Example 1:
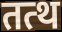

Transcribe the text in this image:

तत्थ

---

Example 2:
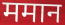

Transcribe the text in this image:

ममान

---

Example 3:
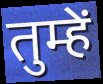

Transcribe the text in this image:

तुम्‍हें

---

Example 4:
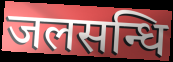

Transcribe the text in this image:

जलसन्धि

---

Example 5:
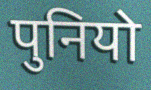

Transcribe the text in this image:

पुनियो